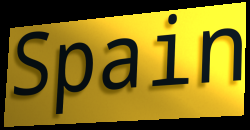
Spain